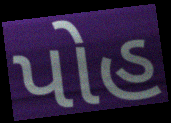
પોહ